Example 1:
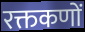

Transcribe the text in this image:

रक्तकणों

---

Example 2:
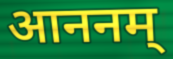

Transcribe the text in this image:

आननम्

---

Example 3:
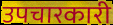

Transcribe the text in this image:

उपचारकारी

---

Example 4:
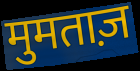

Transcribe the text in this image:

मुमताज़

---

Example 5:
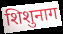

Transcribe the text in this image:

शिशुनाग